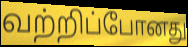
வற்றிப்போனது